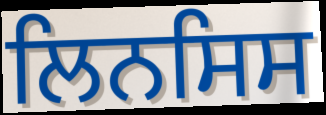
ਲਿਨਸਿਸ